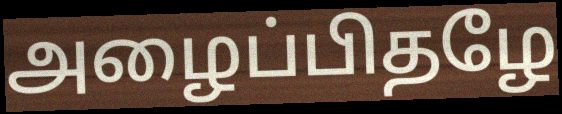
அழைப்பிதழே